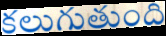
కలుగుతుంది